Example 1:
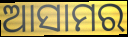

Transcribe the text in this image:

ଆସାମର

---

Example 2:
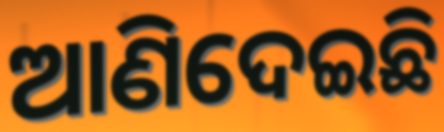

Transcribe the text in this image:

ଆଣିଦେଇଛି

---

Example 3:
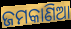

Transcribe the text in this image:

ଜମକାଣିଆ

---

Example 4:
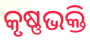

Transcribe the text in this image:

କୃଷ୍ଣଭକ୍ତି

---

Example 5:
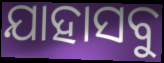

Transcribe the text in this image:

ଯାହାସବୁ